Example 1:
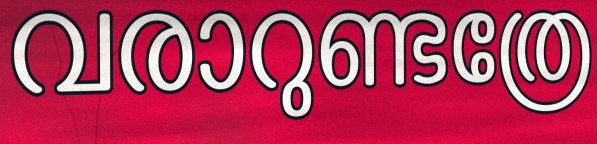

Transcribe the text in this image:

വരാറുണ്ടത്രേ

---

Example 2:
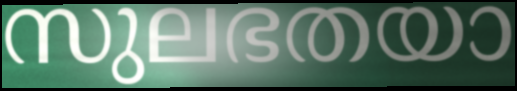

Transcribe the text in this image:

സുലഭതയാ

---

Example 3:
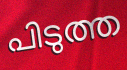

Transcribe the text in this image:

പിടുത്ത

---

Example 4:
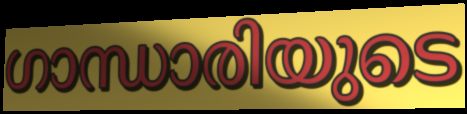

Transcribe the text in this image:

ഗാന്ധാരിയുടെ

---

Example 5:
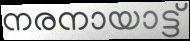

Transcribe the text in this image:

നരനായാട്ട്